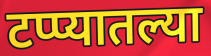
टप्प्यातल्या